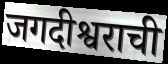
जगदीश्वराची